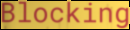
Blocking